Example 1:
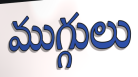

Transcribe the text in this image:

ముగ్గులు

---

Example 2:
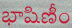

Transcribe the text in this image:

భాషిణీం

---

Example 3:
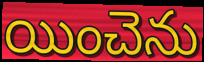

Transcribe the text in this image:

యించెను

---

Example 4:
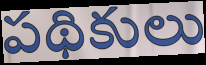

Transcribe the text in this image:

పథికులు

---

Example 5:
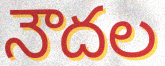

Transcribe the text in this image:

నౌదల